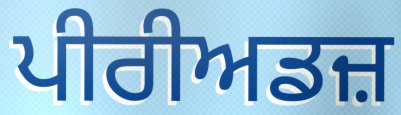
ਪੀਰੀਅਡਜ਼